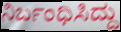
ನಿರ್ಬಂಧಿಸಿದ್ದು